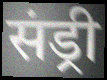
संड्री